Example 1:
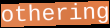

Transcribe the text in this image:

othering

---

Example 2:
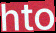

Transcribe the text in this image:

hto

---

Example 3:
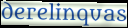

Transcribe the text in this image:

derelinquas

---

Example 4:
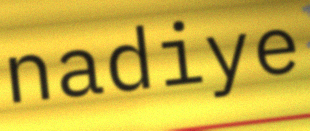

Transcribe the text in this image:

nadiye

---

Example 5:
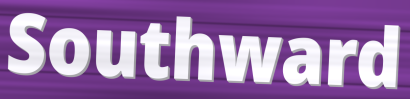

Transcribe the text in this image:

Southward